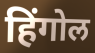
हिंगोल